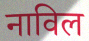
नाविल